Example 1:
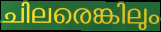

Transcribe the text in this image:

ചിലരെങ്കിലും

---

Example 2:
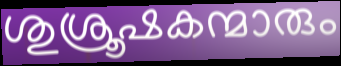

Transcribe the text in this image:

ശുശ്രൂഷകന്മാരും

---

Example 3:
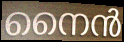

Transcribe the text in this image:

നൈൻ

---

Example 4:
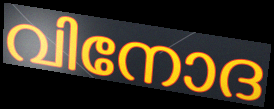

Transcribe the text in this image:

വിനോദ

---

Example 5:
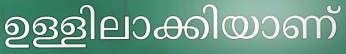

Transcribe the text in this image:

ഉള്ളിലാക്കിയാണ്